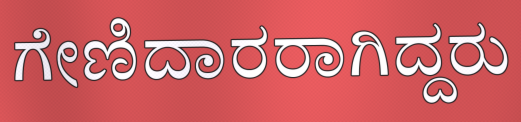
ಗೇಣಿದಾರರಾಗಿದ್ದರು